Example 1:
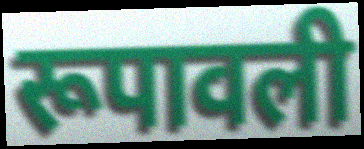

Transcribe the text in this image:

रूपावली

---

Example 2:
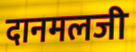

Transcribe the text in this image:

दानमलजी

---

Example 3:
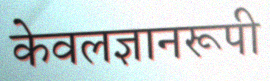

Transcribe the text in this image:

केवलज्ञानरूपी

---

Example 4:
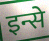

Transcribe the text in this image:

इन्से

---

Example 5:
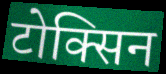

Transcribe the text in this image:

टोक्सिन